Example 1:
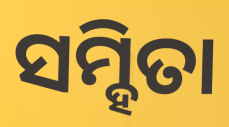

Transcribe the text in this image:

ସମ୍ହିତା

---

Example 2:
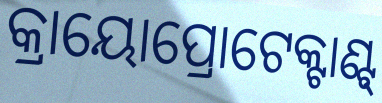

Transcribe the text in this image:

କ୍ରାୟୋପ୍ରୋଟେକ୍ଟାଣ୍ଟ୍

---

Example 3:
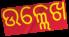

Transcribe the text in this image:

ଉଳ୍ଲେଖ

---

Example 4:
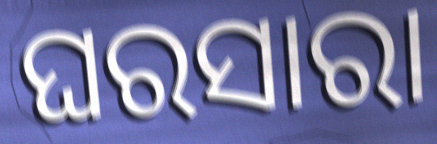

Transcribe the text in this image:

ଘରସାରା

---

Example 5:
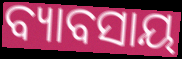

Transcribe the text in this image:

ବ୍ୟାବସାୟ